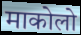
माकोलो